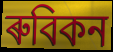
ৰুবিকন